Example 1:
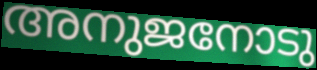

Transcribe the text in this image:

അനുജനോടു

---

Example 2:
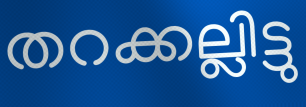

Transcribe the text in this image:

തറക്കല്ലിട്ടു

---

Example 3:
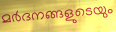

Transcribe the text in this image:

മർദനങ്ങളുടെയും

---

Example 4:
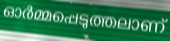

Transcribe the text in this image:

ഓർമ്മപ്പെടുത്തലാണ്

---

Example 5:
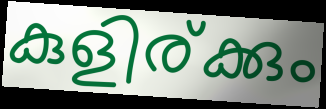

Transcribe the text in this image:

കുളിര്ക്കും